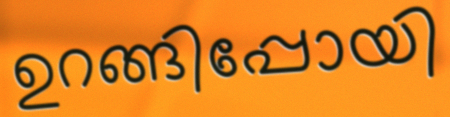
ഉറങ്ങിപ്പോയി